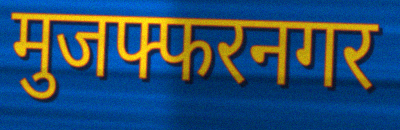
मुजफ्फरनगर